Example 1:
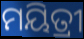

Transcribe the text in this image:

ମୟିତ୍ରୀ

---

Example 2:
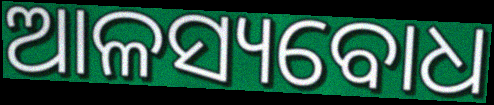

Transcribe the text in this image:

ଆଳସ୍ୟବୋଧ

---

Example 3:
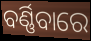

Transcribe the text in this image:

ବର୍ଣ୍ଣିବାରେ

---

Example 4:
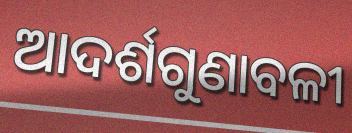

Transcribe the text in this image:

ଆଦର୍ଶଗୁଣାବଳୀ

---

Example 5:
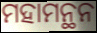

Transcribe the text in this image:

ମହାମନ୍ଥନ